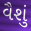
વૈશું